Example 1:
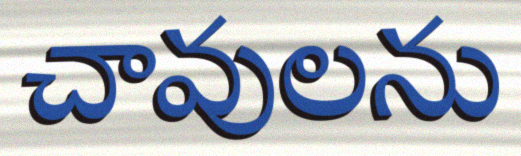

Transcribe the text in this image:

చావులను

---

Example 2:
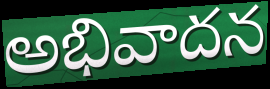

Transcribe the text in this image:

అభివాదన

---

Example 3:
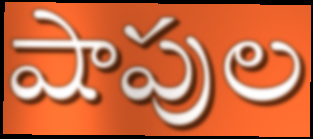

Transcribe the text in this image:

షాపుల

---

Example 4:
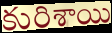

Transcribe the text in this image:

కురిశాయి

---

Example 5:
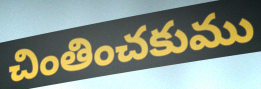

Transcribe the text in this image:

చింతించకుము